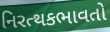
નિરત્થકભાવતો